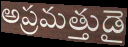
అప్రమత్తుడై